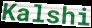
Kalshi